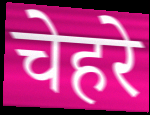
चेहरे